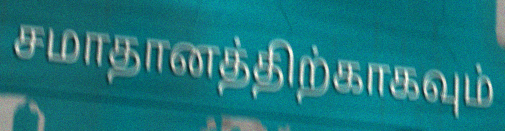
சமாதானத்திற்காகவும்